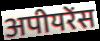
अपीयरेंस